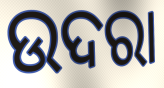
ଉଦରା